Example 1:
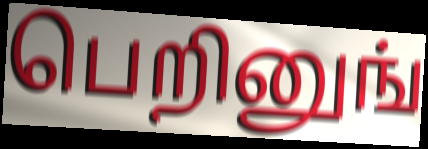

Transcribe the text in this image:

பெறினுங்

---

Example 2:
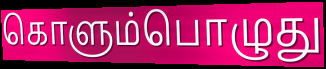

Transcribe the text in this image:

கொளும்பொழுது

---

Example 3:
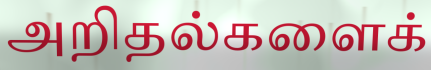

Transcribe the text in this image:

அறிதல்களைக்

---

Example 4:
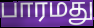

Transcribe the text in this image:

பாரமது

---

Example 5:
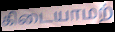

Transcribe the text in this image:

கிடையாமற்